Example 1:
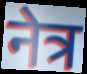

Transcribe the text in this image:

नेत्र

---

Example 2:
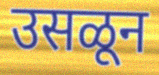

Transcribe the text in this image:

उसळून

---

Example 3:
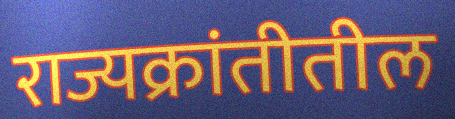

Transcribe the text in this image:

राज्यक्रांतीतील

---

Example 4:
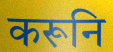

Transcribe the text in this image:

करूनि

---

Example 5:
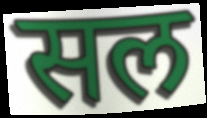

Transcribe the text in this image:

सल